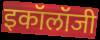
इकॉलॉजी